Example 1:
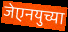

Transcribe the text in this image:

जेएनयुच्या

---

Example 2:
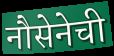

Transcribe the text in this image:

नौसेनेची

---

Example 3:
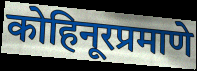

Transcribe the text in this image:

कोहिनूरप्रमाणे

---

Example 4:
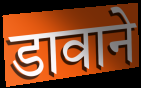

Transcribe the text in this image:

डावाने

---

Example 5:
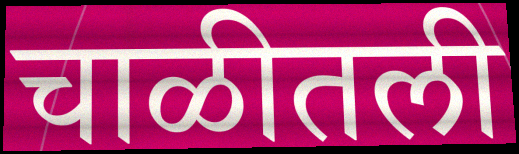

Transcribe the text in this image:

चाळीतली